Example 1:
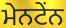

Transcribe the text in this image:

ਮੇਨਟੇਂਨ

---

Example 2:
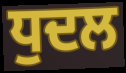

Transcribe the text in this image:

ਧੁਦਲ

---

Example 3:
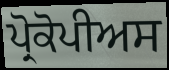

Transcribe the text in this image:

ਪ੍ਰੋਕੋਪੀਅਸ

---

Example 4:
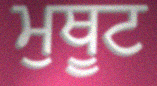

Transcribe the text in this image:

ਮੁਥੂਟ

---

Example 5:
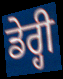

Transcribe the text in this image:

ਡੇਰ੍ਹੀ